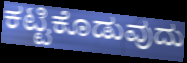
ಕಟ್ಟಿಕೊಡುವುದು